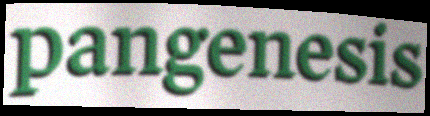
pangenesis